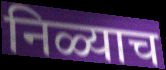
निळ्याच